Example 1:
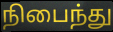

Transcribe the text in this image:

நிபைந்து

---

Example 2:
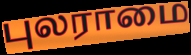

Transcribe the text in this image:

புலராமை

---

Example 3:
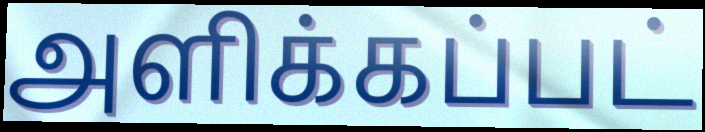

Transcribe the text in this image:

அளிக்கப்பட்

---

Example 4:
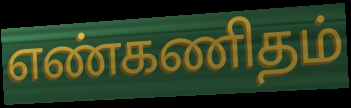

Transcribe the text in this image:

எண்கணிதம்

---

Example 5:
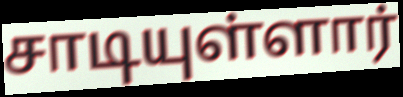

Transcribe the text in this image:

சாடியுள்ளார்